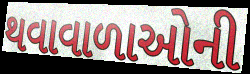
થવાવાળાઓની